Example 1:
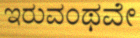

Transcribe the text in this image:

ಇರುವಂಥವೇ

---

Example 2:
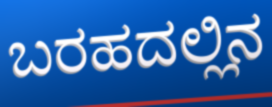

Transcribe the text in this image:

ಬರಹದಲ್ಲಿನ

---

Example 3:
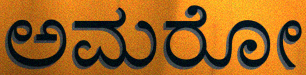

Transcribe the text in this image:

ಅಮರೋ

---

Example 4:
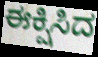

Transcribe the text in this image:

ಈಕ್ಷಿಸಿದ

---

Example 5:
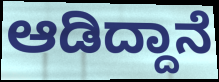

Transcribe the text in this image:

ಆಡಿದ್ದಾನೆ